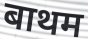
बाथम